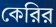
কেরির